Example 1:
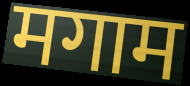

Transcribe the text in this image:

मगाम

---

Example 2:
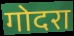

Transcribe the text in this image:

गोदरा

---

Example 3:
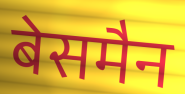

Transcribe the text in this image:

बेसमैन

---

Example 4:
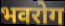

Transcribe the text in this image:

भवरोग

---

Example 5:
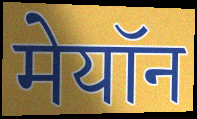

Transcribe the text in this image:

मेयॉन